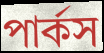
পার্কস